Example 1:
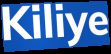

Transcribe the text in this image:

Kiliye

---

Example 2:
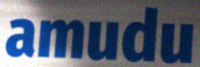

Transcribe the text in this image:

amudu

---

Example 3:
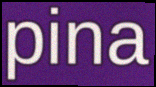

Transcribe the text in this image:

pina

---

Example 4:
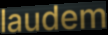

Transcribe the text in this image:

laudem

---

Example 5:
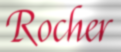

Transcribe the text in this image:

Rocher